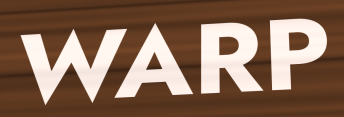
WARP